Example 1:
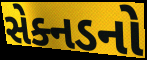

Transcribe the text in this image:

સેક્નડનો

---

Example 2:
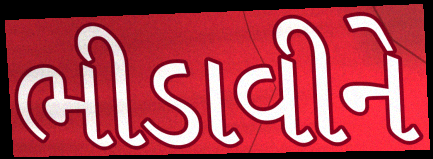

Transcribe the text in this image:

ભીડાવીને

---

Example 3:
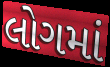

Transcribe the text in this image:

લોગમાં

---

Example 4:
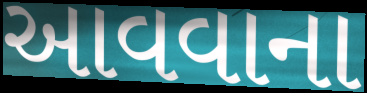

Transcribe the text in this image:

આવવાના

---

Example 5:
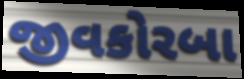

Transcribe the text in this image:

જીવકોરબા